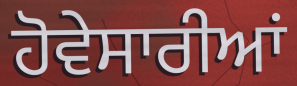
ਹੋਵੇਸਾਰੀਆਂ